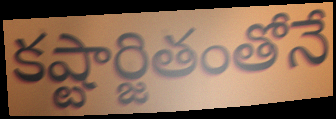
కష్టార్జితంతోనే